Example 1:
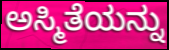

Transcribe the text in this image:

ಅಸ್ಮಿತೆಯನ್ನು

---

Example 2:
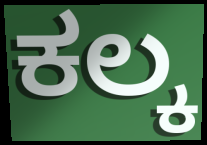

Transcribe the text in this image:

ಕಲ್ಕ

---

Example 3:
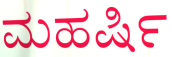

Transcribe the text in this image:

ಮಹರ್ಷಿ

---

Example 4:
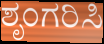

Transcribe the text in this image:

ಶೃಂಗರಿಸಿ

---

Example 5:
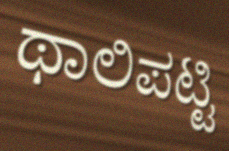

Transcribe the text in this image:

ಥಾಲಿಪಟ್ಟಿ